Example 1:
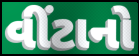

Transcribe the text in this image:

વીંટાનો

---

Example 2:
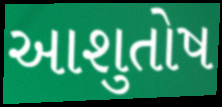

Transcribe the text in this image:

આશુતોષ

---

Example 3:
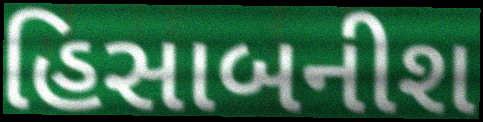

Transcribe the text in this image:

હિસાબનીશ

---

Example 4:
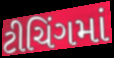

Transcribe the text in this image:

ટીચિંગમાં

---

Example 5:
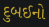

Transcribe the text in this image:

દુબઈનો